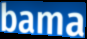
bama